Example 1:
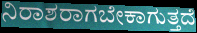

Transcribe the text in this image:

ನಿರಾಶರಾಗಬೇಕಾಗುತ್ತದೆ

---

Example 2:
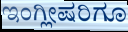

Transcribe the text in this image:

ಇಂಗ್ಲೀಷರಿಗೂ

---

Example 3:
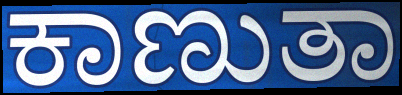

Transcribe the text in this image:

ಕಾಣುತಾ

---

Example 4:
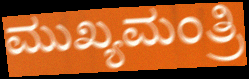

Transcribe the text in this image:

ಮುಖ್ಯಮಂತ್ರಿ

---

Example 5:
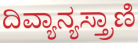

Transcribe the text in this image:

ದಿವ್ಯಾನ್ಯಸ್ತ್ರಾಣಿ